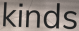
kinds